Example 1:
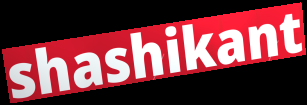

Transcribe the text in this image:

shashikant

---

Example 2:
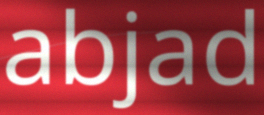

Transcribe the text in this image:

abjad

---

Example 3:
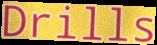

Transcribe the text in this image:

Drills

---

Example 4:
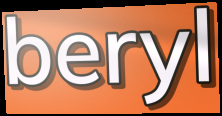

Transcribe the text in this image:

beryl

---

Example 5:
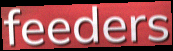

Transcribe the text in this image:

feeders